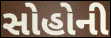
સોહોની